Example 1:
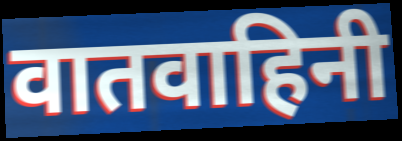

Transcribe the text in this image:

वातवाहिनी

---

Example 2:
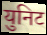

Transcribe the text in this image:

युनिट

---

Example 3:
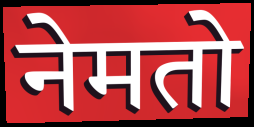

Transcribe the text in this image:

नेमतो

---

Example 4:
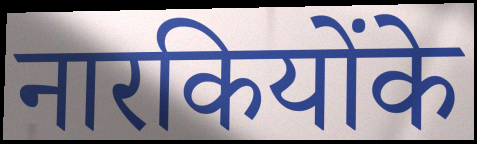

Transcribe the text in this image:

नारकियोंके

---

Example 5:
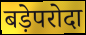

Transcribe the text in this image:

बड़ेपरोदा